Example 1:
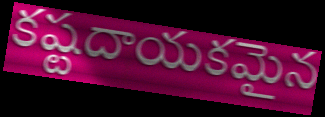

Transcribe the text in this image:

కష్టదాయకమైన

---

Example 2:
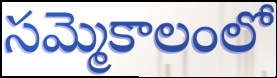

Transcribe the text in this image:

సమ్మెకాలంలో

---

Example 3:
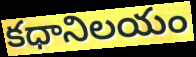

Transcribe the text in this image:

కధానిలయం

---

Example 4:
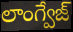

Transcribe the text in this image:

లాంగ్వేజ్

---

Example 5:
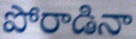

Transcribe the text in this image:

పోరాడినా